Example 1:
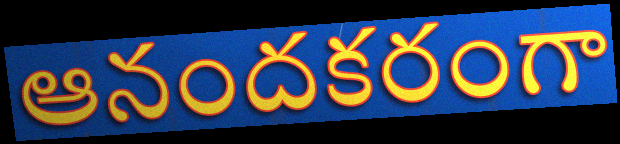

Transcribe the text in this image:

ఆనందకరంగా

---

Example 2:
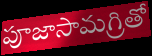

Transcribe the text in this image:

పూజాసామగ్రితో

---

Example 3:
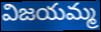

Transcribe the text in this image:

విజయమ్మ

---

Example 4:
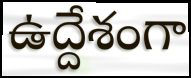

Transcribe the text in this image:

ఉద్దేశంగా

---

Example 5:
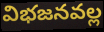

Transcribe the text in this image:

విభజనవల్ల